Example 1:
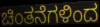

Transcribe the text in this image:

ಚಿಂತನೆಗಳಿಂದ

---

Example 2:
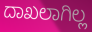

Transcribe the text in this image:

ದಾಖಲಾಗಿಲ್ಲ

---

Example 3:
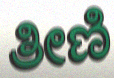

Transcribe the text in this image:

ತೀಣಿ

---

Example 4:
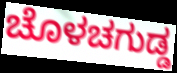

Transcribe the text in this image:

ಚೊಳಚಗುಡ್ಡ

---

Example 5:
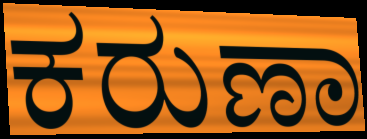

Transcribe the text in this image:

ಕರುಣಾ